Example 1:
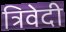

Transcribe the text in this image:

त्रिवेदी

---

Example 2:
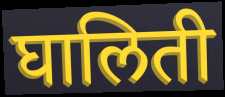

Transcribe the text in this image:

घालिती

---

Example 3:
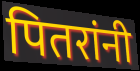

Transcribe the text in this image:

पितरांनी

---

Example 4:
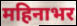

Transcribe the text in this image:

महिनाभर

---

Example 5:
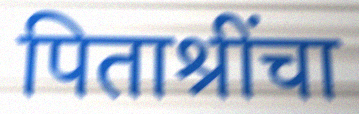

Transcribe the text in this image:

पिताश्रींचा